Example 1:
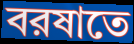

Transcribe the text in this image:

বরষাতে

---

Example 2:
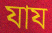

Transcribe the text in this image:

যায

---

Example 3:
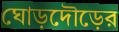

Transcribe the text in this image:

ঘোড়দৌড়ের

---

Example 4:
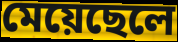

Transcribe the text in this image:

মেয়েছেলে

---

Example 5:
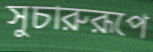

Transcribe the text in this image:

সুচারুরূপে